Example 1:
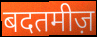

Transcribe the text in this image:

बदतमीज़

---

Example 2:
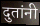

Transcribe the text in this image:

दुतांनी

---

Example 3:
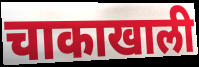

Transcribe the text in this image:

चाकाखाली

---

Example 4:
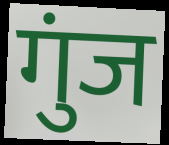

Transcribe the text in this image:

गुंज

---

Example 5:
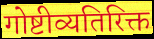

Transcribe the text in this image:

गोष्टीव्यतिरिक्त